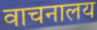
वाचनालय